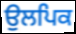
ਉਲਪਿਕ